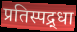
प्रतिस्पद्र्धा